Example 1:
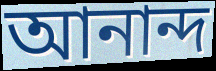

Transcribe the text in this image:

আনান্দ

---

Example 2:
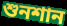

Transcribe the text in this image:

শুনশান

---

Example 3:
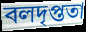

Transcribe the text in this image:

বলদৃপ্ততা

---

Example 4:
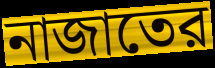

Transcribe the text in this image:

নাজাতের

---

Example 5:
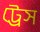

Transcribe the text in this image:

ট্রেস